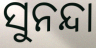
ସୁନନ୍ଦା